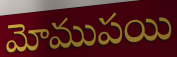
మోముపయి